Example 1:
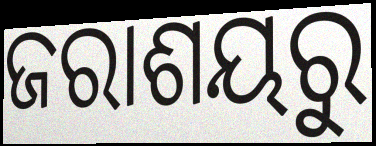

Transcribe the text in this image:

ଜରାଶୟରୁ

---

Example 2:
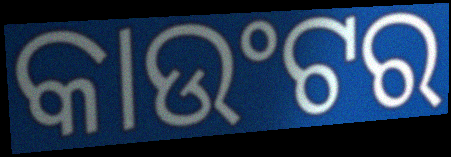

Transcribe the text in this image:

କାଉଂଟର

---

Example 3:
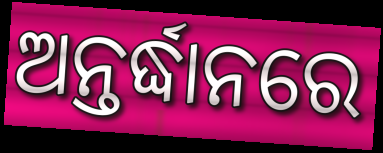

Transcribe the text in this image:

ଅନ୍ତର୍ଦ୍ଧାନରେ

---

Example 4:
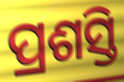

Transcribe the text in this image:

ପ୍ରଶସ୍ତି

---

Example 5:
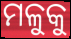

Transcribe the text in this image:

ମଳୁକୁ